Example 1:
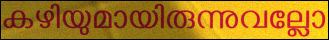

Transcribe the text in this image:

കഴിയുമായിരുന്നുവല്ലോ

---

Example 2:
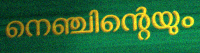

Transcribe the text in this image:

നെഞ്ചിന്റെയും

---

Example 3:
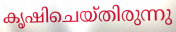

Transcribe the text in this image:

കൃഷിചെയ്തിരുന്നു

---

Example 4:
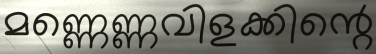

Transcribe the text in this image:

മണ്ണെണ്ണവിളക്കിന്റെ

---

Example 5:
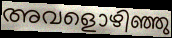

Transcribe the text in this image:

അവളൊഴിഞ്ഞു